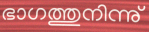
ഭാഗത്തുനിന്നു്